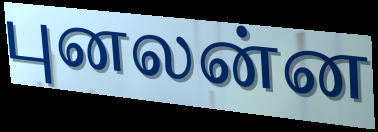
புனலன்ன